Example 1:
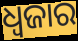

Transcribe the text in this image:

ଧ୍ୱଜାର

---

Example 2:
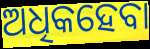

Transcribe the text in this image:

ଅଧିକହେବା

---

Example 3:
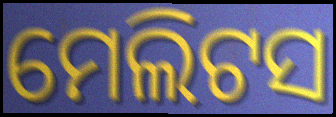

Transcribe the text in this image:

ମେଲିଟସ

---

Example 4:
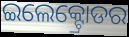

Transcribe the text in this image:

ଇଲେକ୍ଟ୍ରୋଡର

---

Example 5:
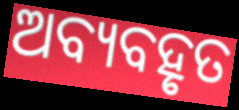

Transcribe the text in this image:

ଅବ୍ୟବହୃତ